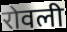
रोवली